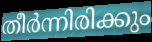
തീർന്നിരിക്കും